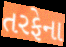
તરફેના